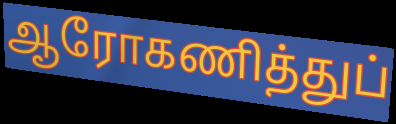
ஆரோகணித்துப்